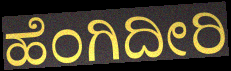
ಹೆಂಗಿದೀರಿ